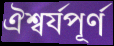
ঐশ্বর্যপূর্ণ